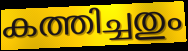
കത്തിച്ചതും